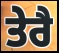
ਤੇਰੈ